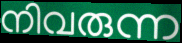
നിവരുന്ന